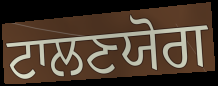
ਟਾਲਣਯੋਗ